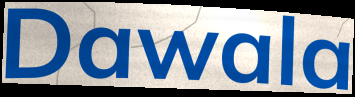
Dawala